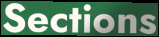
Sections